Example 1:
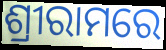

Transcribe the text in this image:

ଶ୍ରୀରାମରେ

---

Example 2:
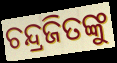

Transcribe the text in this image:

ଚନ୍ଦ୍ରଜିତଙ୍କୁ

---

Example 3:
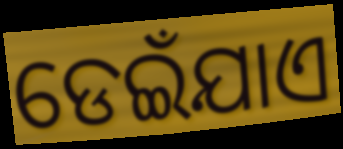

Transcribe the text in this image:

ଡେଇଁଯାଏ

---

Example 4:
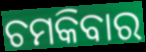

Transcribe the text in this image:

ଚମକିବାର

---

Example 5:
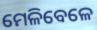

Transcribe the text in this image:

ମେଳିବେଳେ